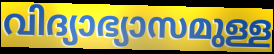
വിദ്യാഭ്യാസമുള്ള